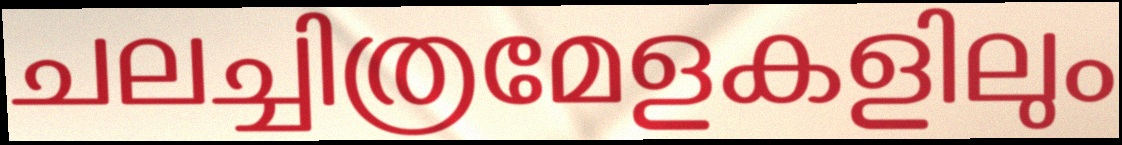
ചലച്ചിത്രമേളകളിലും